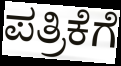
ಪತ್ರಿಕೆಗೆ